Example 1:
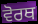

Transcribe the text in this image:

ਵੋਰਥ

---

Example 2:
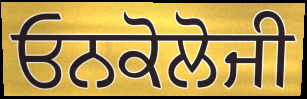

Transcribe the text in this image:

ਓਨਕੋਲੋਜੀ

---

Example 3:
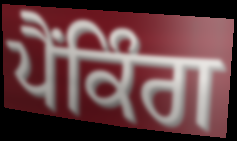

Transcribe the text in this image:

ਪੈਂਕਿੰਗ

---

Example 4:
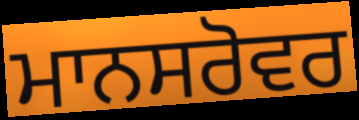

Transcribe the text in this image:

ਮਾਨਸਰੋਵਰ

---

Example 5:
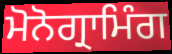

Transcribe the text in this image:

ਮੋਨੋਗ੍ਰਾਮਿੰਗ